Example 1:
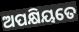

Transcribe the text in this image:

ଅପକ୍ଷିୟତେ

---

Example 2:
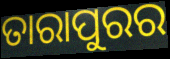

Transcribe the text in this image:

ତାରାପୁରର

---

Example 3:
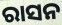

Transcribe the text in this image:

ରାସନ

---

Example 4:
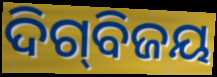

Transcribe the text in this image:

ଦିଗ୍‌ବିଜୟ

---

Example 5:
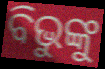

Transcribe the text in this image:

ବିଭୁଙ୍କୁ